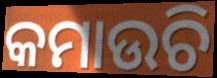
କମାଉଚି